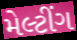
મેલ્ટીંગ